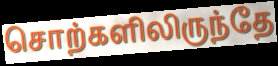
சொற்களிலிருந்தே